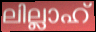
ലില്ലാഹ്